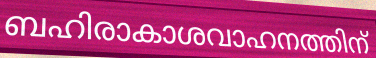
ബഹിരാകാശവാഹനത്തിന്